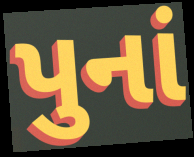
પુનાં